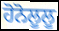
ਹੋਨੋਲੂਲੂ